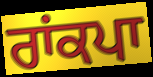
ਰਾਂਕਪਾ